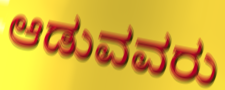
ಆಡುವವರು